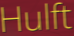
Hulft